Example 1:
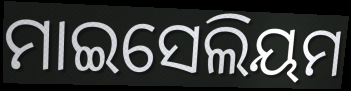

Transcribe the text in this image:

ମାଇସେଲିୟମ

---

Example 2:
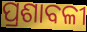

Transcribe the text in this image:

ପ୍ରଶାବଳୀ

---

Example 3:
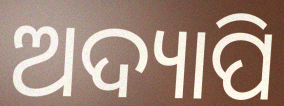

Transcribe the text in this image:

ଅଦ୍ୟାପି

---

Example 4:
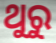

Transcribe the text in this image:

ଥୁରୁ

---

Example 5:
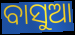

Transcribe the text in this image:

ବାସୁଆ